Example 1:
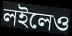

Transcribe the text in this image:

লইলেও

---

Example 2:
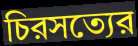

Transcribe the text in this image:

চিরসত্যের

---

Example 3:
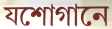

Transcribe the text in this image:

যশোগানে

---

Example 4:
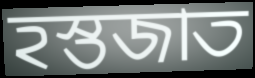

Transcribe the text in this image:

হস্তজাত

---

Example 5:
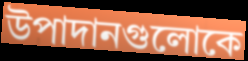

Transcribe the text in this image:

উপাদানগুলোকে